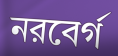
নরবের্গ